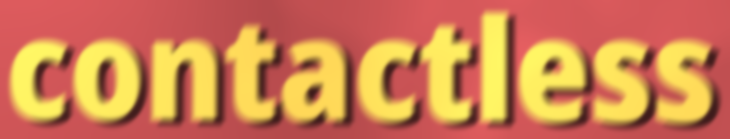
contactless